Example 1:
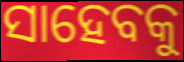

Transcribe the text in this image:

ସାହେବକୁ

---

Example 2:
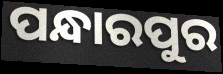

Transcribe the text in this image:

ପନ୍ଧାରପୁର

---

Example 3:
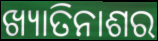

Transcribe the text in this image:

ଖ୍ୟାତିନାଶର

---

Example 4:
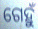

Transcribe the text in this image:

ଗେହୁଁ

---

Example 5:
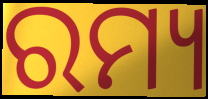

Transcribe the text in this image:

ରମ୍ୟ